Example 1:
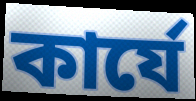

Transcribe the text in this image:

কার্যে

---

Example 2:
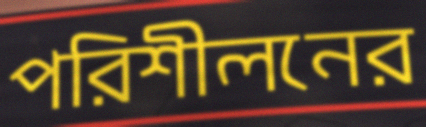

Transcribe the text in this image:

পরিশীলনের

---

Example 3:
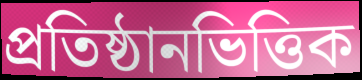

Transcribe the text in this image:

প্রতিষ্ঠানভিত্তিক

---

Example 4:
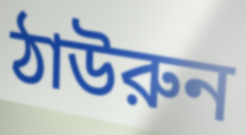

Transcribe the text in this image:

ঠাউরুন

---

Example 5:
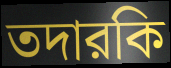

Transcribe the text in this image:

তদারকি